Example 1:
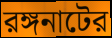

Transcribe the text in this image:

রঙ্গনাটের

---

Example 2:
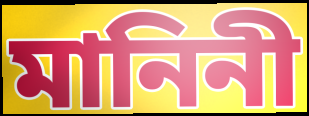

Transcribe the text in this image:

মানিনী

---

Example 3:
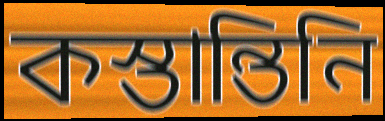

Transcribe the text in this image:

কস্তান্তিনি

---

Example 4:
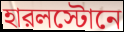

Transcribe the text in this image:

হারলস্টোনে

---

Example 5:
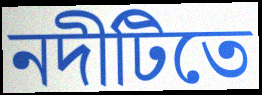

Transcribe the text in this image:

নদীটিতে